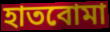
হাতবোমা